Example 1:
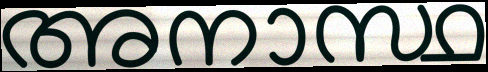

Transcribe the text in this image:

അനാസ്ഥ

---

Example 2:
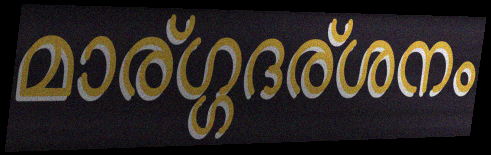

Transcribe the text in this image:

മാര്ഗ്ഗദര്ശനം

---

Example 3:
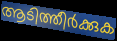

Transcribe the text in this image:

ആടിത്തീർക്കുക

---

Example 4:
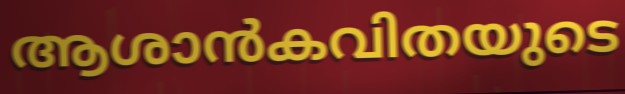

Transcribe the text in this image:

ആശാൻകവിതയുടെ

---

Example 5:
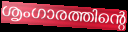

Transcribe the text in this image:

ശൃംഗാരത്തിന്റെ